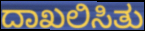
ದಾಖಲಿಸಿತು